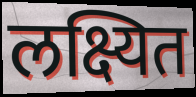
लक्ष्यित